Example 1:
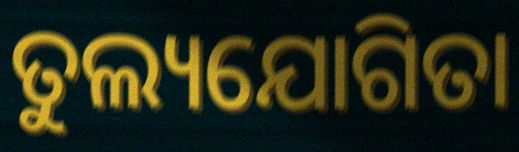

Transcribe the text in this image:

ତୁଲ୍ୟଯୋଗିତା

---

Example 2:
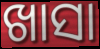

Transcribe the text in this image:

ଖାସା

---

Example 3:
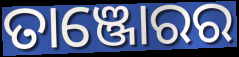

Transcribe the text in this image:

ତାଞ୍ଜୋରର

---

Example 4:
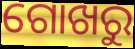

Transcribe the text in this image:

ଗୋଖରୁ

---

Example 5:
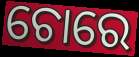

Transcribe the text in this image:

ଚୋରେ